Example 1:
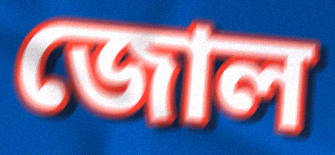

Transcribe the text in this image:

জোল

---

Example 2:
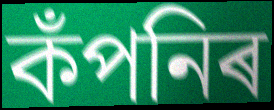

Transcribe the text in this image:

কঁপনিৰ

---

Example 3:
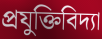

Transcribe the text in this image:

প্ৰযুক্তিবিদ্যা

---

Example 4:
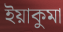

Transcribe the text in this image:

ইয়াকুমা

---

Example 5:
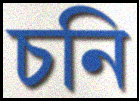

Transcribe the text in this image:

চনি